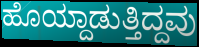
ಹೊಯ್ದಾಡುತ್ತಿದ್ದವು